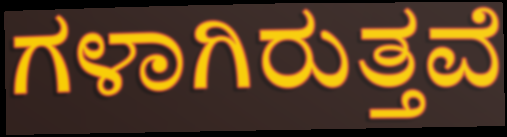
ಗಳಾಗಿರುತ್ತವೆ